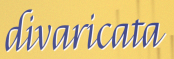
divaricata